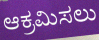
ಆಕ್ರಮಿಸಲು